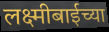
लक्ष्मीबाईच्या